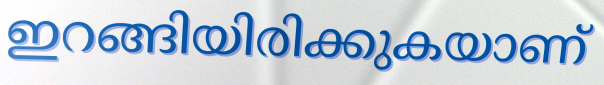
ഇറങ്ങിയിരിക്കുകയാണ്